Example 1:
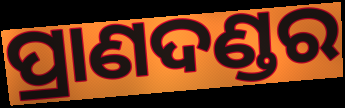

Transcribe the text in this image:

ପ୍ରାଣଦଣ୍ଡର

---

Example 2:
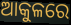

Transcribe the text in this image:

ଆକୁଳରେ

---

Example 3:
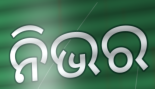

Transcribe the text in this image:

ନିଭର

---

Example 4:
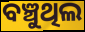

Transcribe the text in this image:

ବଞ୍ଚୁଥିଲ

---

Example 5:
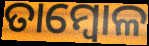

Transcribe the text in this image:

ତାମ୍ବୋଳ